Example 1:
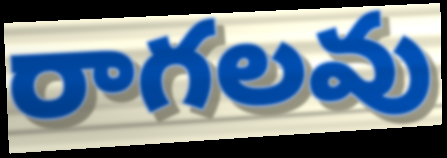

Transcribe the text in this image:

రాగలవు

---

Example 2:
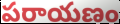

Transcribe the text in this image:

పరాయణం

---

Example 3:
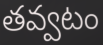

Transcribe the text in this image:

తవ్వటం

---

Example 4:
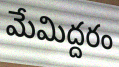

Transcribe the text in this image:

మేమిద్దరం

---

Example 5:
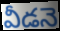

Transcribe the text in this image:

వీడనె